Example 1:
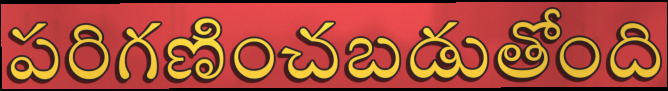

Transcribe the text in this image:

పరిగణించబడుతోంది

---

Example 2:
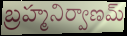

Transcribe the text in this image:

బ్రహ్మనిర్వాణమ్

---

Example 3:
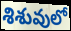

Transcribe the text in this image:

శిశువులో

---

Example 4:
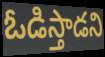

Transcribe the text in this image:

ఓడిస్తాడని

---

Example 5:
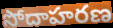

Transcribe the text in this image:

సోదాహరణ